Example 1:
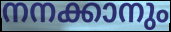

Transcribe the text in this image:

നനക്കാനും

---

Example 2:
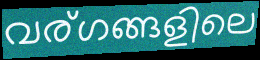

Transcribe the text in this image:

വര്ഗങ്ങളിലെ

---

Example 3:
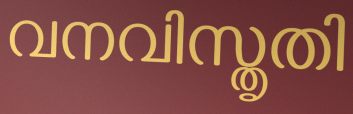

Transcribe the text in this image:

വനവിസ്തൃതി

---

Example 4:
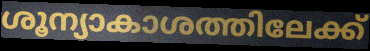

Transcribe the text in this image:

ശൂന്യാകാശത്തിലേക്ക്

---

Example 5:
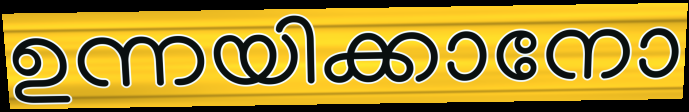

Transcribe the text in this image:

ഉന്നയിക്കാനോ